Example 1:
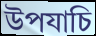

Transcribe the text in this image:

উপযাচি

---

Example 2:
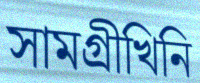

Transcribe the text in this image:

সামগ্ৰীখিনি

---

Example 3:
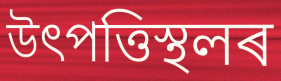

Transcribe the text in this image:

উৎপত্তিস্থলৰ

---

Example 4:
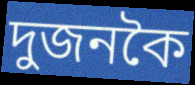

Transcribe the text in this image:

দুজনকৈ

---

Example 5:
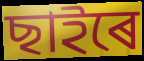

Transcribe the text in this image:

ছাইৰে